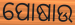
ପୋଷାଉ